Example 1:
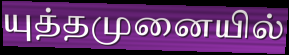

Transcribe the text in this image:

யுத்தமுனையில்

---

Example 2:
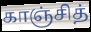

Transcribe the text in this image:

காஞ்சித்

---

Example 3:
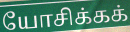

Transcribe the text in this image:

யோசிக்கக்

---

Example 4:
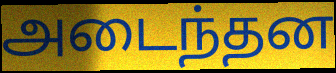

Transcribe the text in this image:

அடைந்தன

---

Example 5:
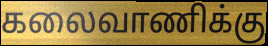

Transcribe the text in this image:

கலைவாணிக்கு